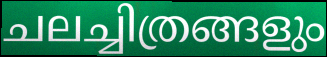
ചലച്ചിത്രങ്ങളും